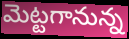
మెట్టగానున్న